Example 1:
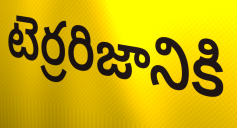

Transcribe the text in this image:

టెర్రరిజానికి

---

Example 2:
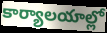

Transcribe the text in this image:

కార్యాలయాల్లో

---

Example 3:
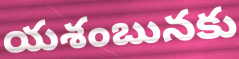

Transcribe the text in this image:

యశంబునకు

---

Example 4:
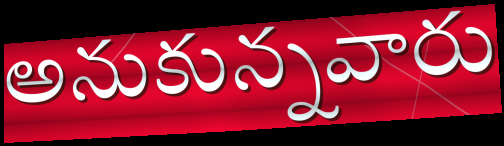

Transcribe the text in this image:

అనుకున్నవారు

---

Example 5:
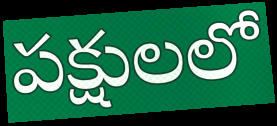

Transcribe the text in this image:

పక్షులలో